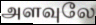
அளவுலே